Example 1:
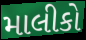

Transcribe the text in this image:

માલીકો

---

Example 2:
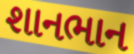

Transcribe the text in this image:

શાનભાન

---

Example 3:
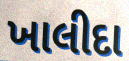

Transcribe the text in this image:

ખાલીદા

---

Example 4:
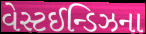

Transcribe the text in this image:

વેસ્ટઈન્ડિઝના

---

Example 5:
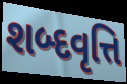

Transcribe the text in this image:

શબ્દવૃત્તિ